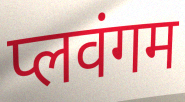
प्लवंगम